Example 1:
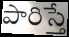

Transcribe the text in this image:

పారిస్తే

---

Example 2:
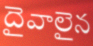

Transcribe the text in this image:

దైవాలైన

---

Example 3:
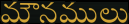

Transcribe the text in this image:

మౌనములు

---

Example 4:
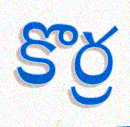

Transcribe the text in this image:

కొర్ర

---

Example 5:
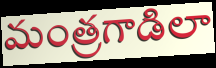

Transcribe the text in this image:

మంత్రగాడిలా